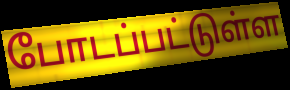
போடப்பட்டுள்ள